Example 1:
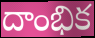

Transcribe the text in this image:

దాంభిక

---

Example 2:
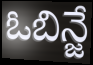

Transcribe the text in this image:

ఓబిన్జే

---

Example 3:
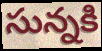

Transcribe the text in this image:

సున్నకి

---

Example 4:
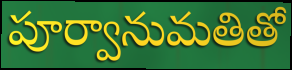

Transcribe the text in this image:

పూర్వానుమతితో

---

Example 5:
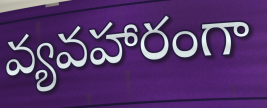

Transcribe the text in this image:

వ్యవహారంగా